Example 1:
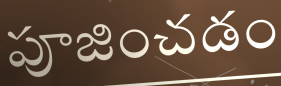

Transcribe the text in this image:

పూజించడం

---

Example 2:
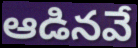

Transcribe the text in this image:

ఆడినవే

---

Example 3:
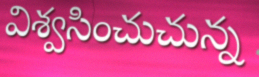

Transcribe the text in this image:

విశ్వసించుచున్న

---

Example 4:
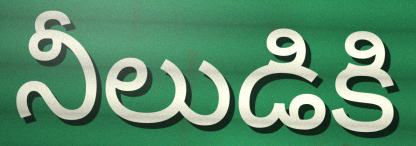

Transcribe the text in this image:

నీలుడికి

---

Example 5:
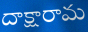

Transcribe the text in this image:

దాక్షారామ